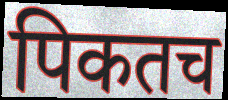
पिकतच